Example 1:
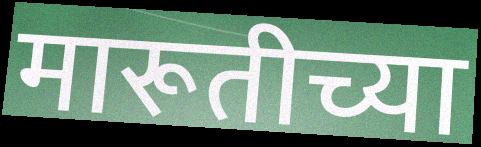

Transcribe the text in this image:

मारूतीच्या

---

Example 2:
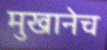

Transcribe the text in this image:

मुखानेच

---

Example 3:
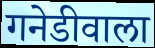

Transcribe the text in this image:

गनेडीवाला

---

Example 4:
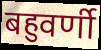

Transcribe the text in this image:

बहुवर्णी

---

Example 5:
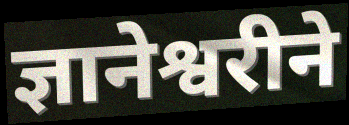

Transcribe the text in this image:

ज्ञानेश्वरीने